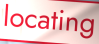
locating